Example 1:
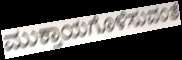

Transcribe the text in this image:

ಮುಕ್ತಾಯಗೊಳಿಸುವಂತೆ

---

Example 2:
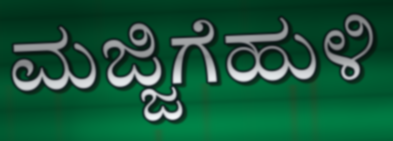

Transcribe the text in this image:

ಮಜ್ಜಿಗೆಹುಳಿ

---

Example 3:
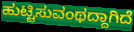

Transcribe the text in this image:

ಹುಟ್ಟಿಸುವಂಥದ್ದಾಗಿದೆ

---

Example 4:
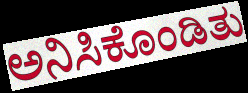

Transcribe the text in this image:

ಅನಿಸಿಕೊಂಡಿತು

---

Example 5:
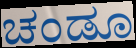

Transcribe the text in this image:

ಚಂಡೂ